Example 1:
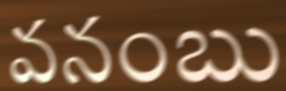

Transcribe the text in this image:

వనంబు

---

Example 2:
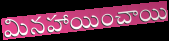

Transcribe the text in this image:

మినహాయించాయి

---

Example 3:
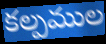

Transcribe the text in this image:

కల్పముల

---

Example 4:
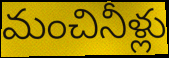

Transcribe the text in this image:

మంచినీళ్లు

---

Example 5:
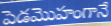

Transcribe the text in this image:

పెడమొహంగానే